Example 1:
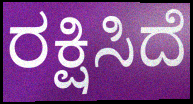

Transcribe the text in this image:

ರಕ್ಷಿಸಿದೆ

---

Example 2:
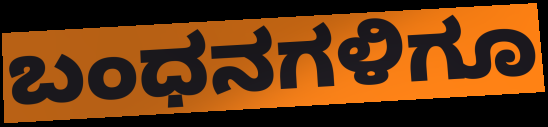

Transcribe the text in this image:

ಬಂಧನಗಳಿಗೂ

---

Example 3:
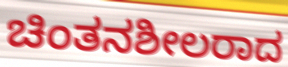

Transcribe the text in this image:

ಚಿಂತನಶೀಲರಾದ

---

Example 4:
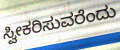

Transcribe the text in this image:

ಸ್ವೀಕರಿಸುವರೆಂದು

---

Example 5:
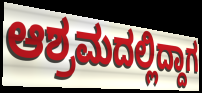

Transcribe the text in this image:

ಆಶ್ರಮದಲ್ಲಿದ್ದಾಗ